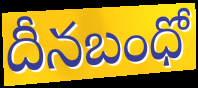
దీనబంధో